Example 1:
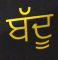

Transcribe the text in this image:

ਬੱਦੂ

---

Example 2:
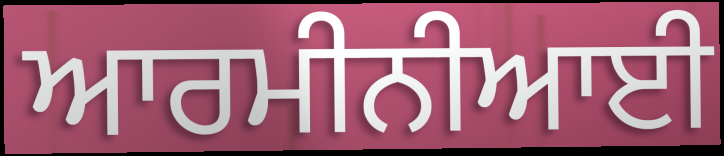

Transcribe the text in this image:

ਆਰਮੀਨੀਆਈ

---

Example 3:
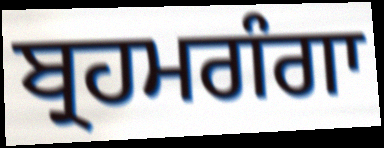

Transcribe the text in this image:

ਬ੍ਰਹਮਗੰਗਾ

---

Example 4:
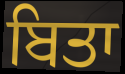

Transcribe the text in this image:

ਬਿਤਾ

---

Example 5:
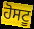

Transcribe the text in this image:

ਹੋਸਟੂ